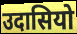
उदासियो